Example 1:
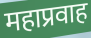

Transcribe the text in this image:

महाप्रवाह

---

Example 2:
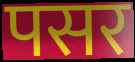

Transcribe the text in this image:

पसर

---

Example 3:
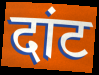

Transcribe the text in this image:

दांट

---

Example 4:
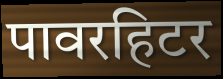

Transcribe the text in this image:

पावरहिटर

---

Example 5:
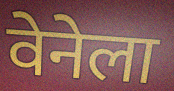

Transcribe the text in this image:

वेनेला